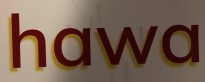
hawa